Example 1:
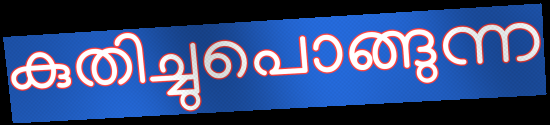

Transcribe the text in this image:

കുതിച്ചുപൊങ്ങുന്ന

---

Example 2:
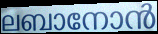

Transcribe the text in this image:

ലബാനോൻ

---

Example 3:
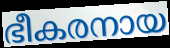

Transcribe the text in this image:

ഭീകരനായ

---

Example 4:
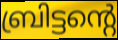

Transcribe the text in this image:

ബ്രിട്ടന്റെ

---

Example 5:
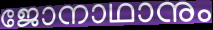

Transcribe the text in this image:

ജോനാഥാനും